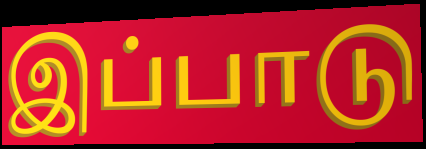
இப்பாடு